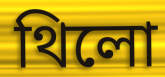
থিলো